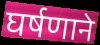
घर्षणाने